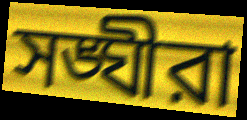
সঙ্ঘীরা